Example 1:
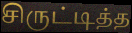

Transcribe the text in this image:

சிருட்டித்த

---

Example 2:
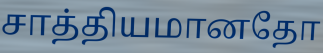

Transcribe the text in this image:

சாத்தியமானதோ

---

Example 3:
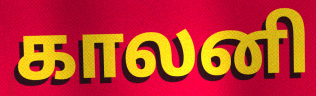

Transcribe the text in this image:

காலனி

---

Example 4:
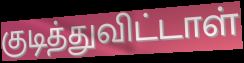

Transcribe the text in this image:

குடித்துவிட்டாள்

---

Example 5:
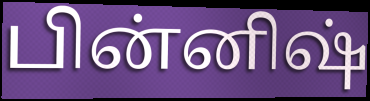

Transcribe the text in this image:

பின்னிஷ்